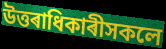
উত্তৰাধিকাৰীসকলে